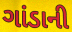
ગાંડાની